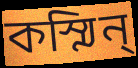
কস্মিন্